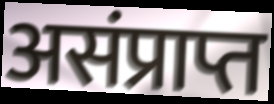
असंप्राप्त